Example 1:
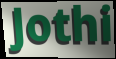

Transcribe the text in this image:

Jothi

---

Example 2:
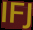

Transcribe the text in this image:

IFJ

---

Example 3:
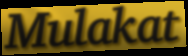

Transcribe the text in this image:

Mulakat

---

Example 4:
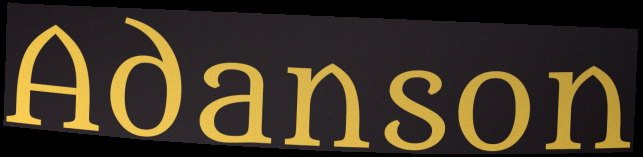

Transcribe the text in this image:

Adanson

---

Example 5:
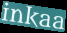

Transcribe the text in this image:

inkaa